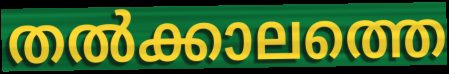
തൽക്കാലത്തെ